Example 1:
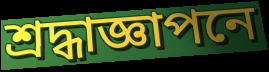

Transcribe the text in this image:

শ্রদ্ধাজ্ঞাপনে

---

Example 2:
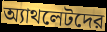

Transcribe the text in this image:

অ্যাথলেটদের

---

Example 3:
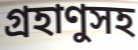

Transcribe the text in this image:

গ্রহাণুসহ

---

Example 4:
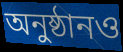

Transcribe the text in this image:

অনুষ্ঠানও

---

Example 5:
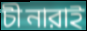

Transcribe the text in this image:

চীনারাই